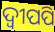
ଦ୍ବୀପପି